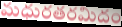
మధురతరమిదం